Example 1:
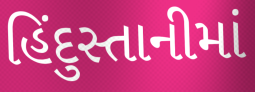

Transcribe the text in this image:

હિંદુસ્તાનીમાં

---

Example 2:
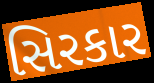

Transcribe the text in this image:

સિરકાર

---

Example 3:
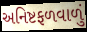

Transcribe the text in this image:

અનિષ્ટફળવાળું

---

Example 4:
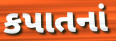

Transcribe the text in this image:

કપાતનાં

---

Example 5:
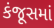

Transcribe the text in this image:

કંજૂસમાં